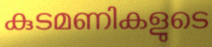
കുടമണികളുടെ